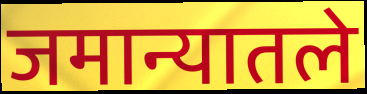
जमान्यातले